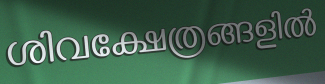
ശിവക്ഷേത്രങ്ങളിൽ